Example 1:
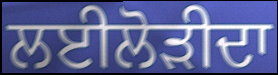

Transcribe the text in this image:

ਲਈਲੋੜੀਦਾ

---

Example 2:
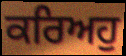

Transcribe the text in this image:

ਕਰਿਅਹੁ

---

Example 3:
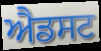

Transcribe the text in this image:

ਐਡਸਟ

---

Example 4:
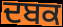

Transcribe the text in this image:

ਦਬਕ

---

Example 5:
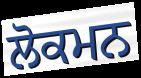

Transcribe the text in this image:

ਲੋਕਮਨ